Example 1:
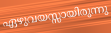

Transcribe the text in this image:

ഏഴുവയസ്സായിരുന്നു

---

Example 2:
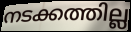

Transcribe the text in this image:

നടക്കത്തില്ല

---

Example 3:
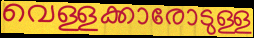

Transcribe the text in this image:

വെള്ളക്കാരോടുള്ള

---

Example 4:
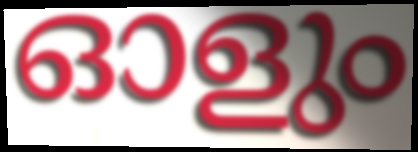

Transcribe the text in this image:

ഓളും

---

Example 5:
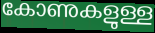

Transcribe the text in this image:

കോണുകളുള്ള